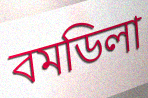
বমডিলা